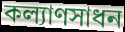
কল্যাণসাধন